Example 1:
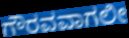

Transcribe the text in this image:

ಗೌರವವಾಗಲೀ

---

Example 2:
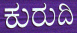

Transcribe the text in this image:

ಕುರುದಿ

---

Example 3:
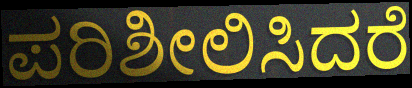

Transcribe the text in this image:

ಪರಿಶೀಲಿಸಿದರೆ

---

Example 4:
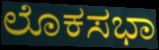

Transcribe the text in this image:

ಲೊಕಸಭಾ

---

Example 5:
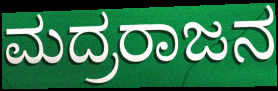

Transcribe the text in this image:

ಮದ್ರರಾಜನ